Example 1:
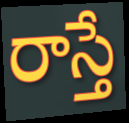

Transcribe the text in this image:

రాస్తే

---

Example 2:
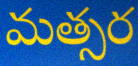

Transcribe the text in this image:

మత్సర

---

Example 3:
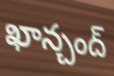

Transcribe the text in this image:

ఖాన్చంద్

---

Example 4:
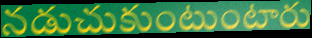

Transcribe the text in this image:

నడుచుకుంటుంటారు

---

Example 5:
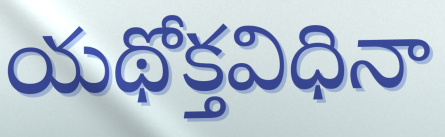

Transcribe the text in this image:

యథోక్తవిధినా